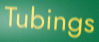
Tubings